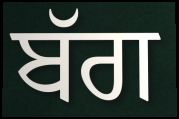
ਬੱਗ